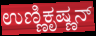
ಉಣ್ಣಿಕೃಷ್ಣನ್